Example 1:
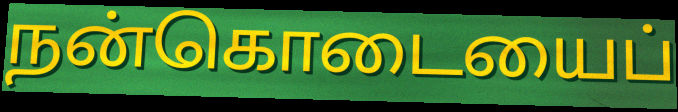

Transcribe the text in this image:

நன்கொடையைப்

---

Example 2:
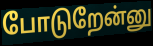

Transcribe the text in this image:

போடுறேன்னு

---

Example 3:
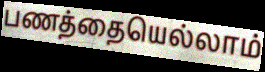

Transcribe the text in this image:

பணத்தையெல்லாம்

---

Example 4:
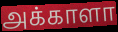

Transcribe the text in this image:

அக்காளா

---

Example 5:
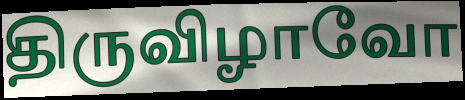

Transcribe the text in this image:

திருவிழாவோ